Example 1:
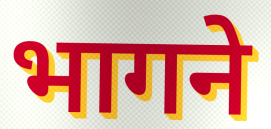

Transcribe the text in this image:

भागने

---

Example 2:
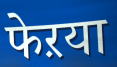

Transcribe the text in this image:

फेऱया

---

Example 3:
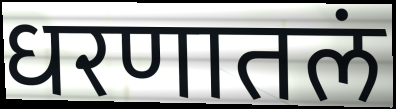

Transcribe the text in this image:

धरणातलं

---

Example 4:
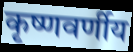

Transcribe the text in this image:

कृष्णवर्णीय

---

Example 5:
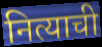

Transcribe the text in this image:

नित्याची